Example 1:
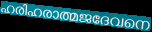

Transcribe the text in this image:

ഹരിഹരാത്മജദേവനെ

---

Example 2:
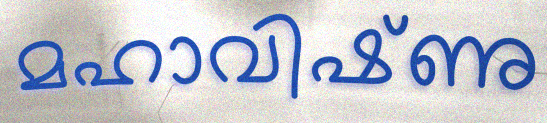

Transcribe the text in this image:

മഹാവിഷ്‌ണു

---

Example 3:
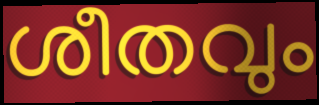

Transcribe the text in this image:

ശീതവും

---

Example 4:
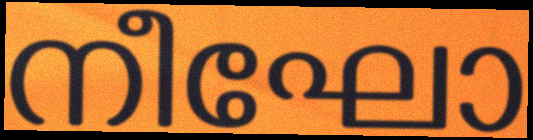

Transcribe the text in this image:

നീഘോ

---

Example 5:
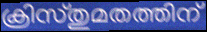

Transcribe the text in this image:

ക്രിസ്തുമതത്തിന്